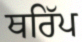
ਥਰਿੱਪ